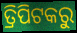
ତ୍ରିପିଟକରୁ